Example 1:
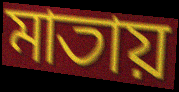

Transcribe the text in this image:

মাতায়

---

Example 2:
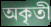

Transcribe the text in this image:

অকৃতী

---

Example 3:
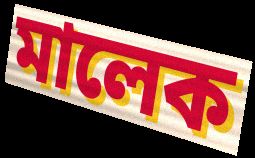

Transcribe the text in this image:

মালেক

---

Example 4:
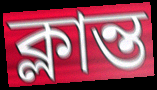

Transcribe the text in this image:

ক্লান্ত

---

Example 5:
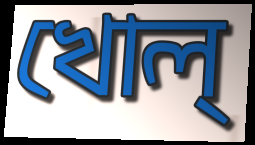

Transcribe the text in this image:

খোল্